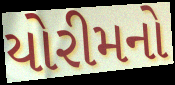
યોરીમનો